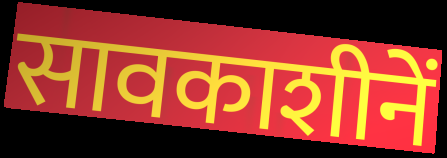
सावकाशीनें